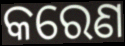
କରେଣ